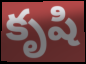
కృషి